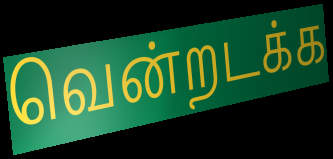
வென்றடக்க